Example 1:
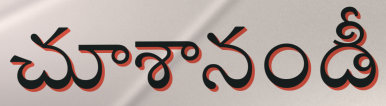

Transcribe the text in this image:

చూశానండీ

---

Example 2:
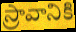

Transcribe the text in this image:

స్రావానికి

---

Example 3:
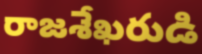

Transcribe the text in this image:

రాజశేఖరుడి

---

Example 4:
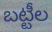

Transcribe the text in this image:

బట్టీల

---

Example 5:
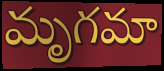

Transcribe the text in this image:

మృగమా